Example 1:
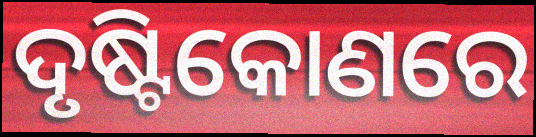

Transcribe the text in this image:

ଦୃଷ୍ଟିକୋଣରେ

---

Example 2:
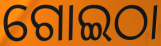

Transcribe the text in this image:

ଗୋଇଠା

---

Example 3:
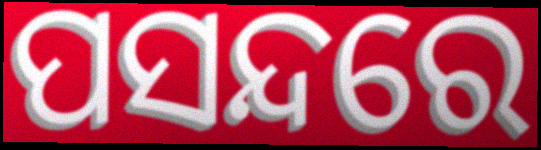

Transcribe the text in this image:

ପସନ୍ଦରେ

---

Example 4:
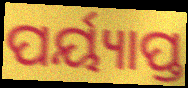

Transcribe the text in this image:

ପର୍ୟ୍ୟାପ୍ତ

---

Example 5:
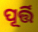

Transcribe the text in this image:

ପୂର୍ତ୍ତି